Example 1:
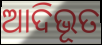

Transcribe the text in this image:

ଆଦିଭୂତ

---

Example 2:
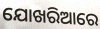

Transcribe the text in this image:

ଯୋଖରିଆରେ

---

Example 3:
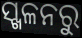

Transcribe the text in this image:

ସ୍ଖଳନରୁ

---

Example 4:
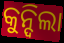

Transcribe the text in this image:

କୁନ୍ଦିଲା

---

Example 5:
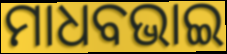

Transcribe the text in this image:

ମାଧବଭାଇ